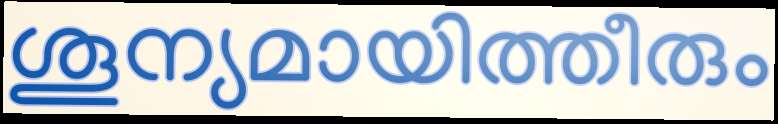
ശൂന്യമായിത്തീരും